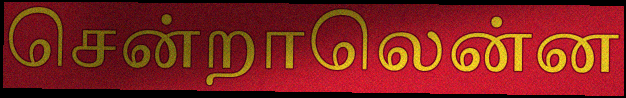
சென்றாலென்ன